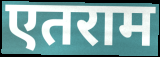
एतराम